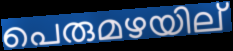
പെരുമഴയില്